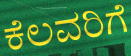
ಕೆಲವರಿಗೆ